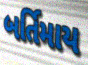
બર્તિમાય